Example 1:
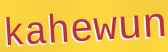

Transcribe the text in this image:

kahewun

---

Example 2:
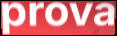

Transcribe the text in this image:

prova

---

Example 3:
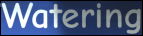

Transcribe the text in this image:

Watering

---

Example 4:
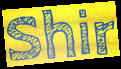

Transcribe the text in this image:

Shir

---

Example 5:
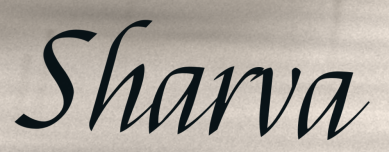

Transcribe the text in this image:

Sharva